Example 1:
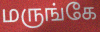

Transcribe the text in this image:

மருங்கே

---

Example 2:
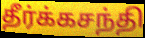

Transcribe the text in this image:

தீர்க்கசந்தி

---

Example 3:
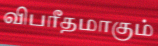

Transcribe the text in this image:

விபரீதமாகும்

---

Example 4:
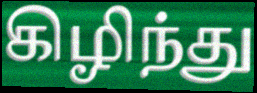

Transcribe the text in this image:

கிழிந்து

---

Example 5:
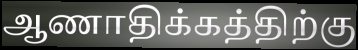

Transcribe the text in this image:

ஆணாதிக்கத்திற்கு